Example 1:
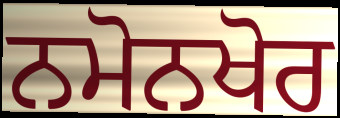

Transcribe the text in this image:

ਨਮੋਨਖੋਰ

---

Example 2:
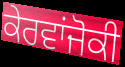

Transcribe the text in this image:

ਕੇਰਵਾਂਜੋਕੀ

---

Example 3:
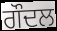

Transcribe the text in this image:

ਗੌਦਲ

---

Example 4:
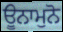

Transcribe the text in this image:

ਊਨਾਮੁਨੋ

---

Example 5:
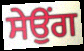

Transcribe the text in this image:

ਸੇਉਂਗ